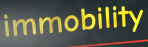
immobility